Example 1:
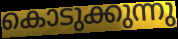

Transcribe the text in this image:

കൊടുക്കുന്നു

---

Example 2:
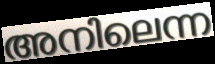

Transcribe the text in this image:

അനിലെന്ന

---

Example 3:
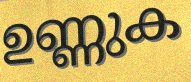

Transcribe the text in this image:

ഉണ്ണുക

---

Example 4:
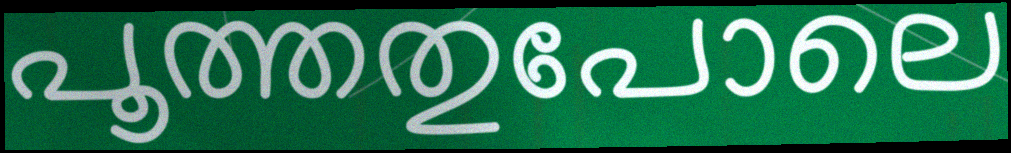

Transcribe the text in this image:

പൂത്തതുപോലെ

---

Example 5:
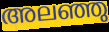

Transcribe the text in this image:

അലഞ്ഞു